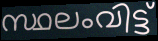
സ്ഥലംവിട്ട്